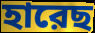
হারেছ